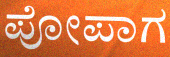
ಪೋಪಾಗ